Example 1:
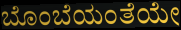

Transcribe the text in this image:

ಬೊಂಬೆಯಂತೆಯೇ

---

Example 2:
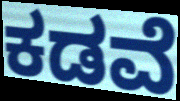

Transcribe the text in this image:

ಕಡವೆ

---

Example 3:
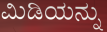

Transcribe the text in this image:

ಮಿಡಿಯನ್ನು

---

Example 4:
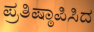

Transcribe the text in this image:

ಪ್ರತಿಷ್ಠಾಪಿಸಿದ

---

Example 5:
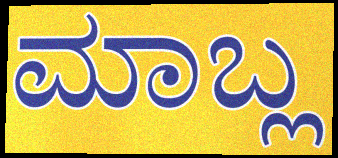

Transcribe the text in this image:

ಮಾಬ್ಲ